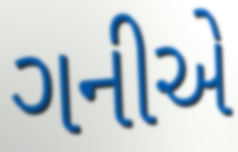
ગનીએ